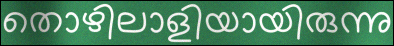
തൊഴിലാളിയായിരുന്നു